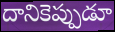
దానికెప్పుడూ